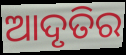
ଆଦୃତିର